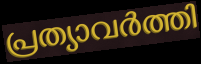
പ്രത്യാവർത്തി